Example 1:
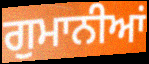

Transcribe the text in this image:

ਗੁਮਾਨੀਆਂ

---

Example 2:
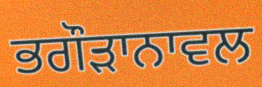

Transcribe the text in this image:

ਭਗੌੜਾਨਾਵਲ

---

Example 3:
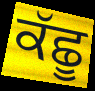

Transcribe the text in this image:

ਕੱਛੂ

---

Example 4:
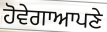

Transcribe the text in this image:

ਹੋਵੇਗਾਆਪਣੇ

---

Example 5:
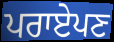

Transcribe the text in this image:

ਪਰਾਏਪਣ